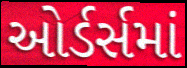
ઓર્ડર્સમાં